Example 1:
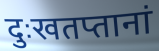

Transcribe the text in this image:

दुःखतप्तानां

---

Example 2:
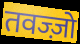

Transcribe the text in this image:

तवज्ज़ो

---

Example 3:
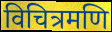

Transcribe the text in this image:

विचित्रमणि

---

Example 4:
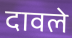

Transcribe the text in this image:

दावले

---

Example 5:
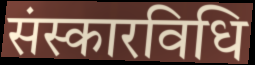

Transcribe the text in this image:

संस्कारविधि